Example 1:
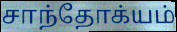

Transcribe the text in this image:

சாந்தோக்யம்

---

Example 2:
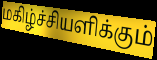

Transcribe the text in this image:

மகிழ்ச்சியளிக்கும்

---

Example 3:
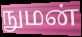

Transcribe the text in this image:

நுமன்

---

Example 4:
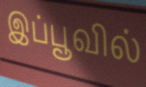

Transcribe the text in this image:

இப்பூவில்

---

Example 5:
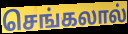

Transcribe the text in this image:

செங்கலால்